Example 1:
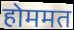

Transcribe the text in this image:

होममत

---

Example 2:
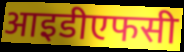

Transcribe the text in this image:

आइडीएफसी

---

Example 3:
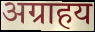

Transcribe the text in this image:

अग्राहय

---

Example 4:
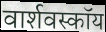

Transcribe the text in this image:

वार्शवस्कॉय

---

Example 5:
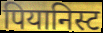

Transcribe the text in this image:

पियानिस्ट